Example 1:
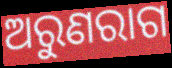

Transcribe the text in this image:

ଅରୁଣରାଗ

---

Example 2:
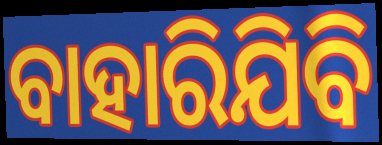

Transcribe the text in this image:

ବାହାରିଯିବି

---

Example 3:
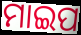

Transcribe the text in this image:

ମାଇପ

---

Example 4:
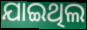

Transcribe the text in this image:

ଯାଇଥିଲ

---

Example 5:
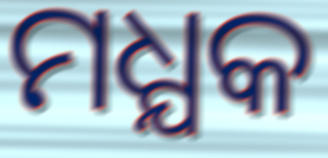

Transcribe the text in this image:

ମଧ୍ଯକ